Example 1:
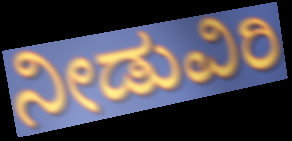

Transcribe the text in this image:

ನೀಡುವಿರಿ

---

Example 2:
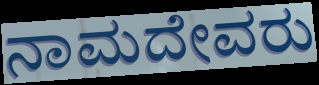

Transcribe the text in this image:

ನಾಮದೇವರು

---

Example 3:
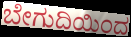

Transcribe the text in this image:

ಬೇಗುದಿಯಿಂದ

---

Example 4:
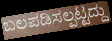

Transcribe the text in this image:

ಬಲಪಡಿಸಲ್ಪಟ್ಟದ್ದು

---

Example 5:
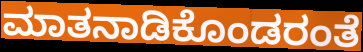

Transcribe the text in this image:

ಮಾತನಾಡಿಕೊಂಡರಂತೆ